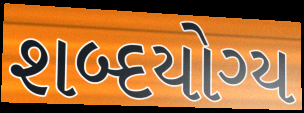
શબ્દયોગ્ય